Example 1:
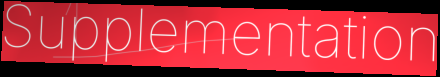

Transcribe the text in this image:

Supplementation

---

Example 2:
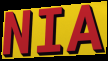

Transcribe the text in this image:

NIA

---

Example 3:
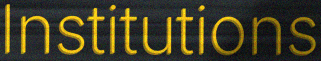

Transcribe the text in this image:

Institutions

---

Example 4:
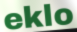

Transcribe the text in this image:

eklo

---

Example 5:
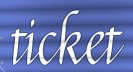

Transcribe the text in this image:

ticket